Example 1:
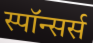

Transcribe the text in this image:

स्पॉन्सर्स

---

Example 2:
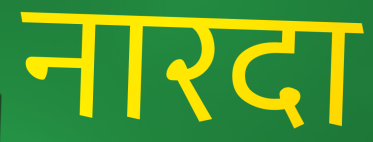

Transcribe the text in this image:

नारदा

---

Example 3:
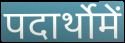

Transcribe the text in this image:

पदार्थोमें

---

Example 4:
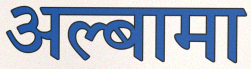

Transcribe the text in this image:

अल्बामा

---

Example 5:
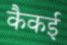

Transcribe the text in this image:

कैकई